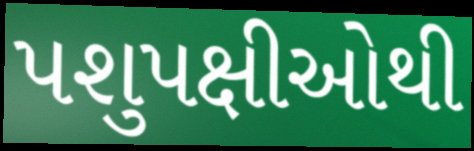
પશુપક્ષીઓથી